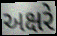
અક્ષરે